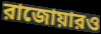
রাজোয়ারও